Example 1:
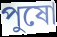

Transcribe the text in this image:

পুষো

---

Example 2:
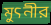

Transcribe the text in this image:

মুৎনীর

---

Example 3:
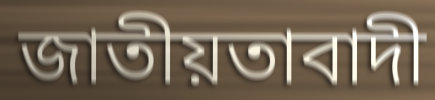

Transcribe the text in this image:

জাতীয়তাবাদী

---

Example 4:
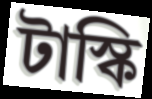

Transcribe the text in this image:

টাস্কি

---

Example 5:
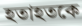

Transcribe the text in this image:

হতাহতকে